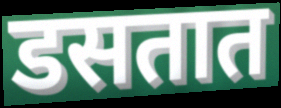
डसतात